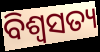
ବିଶ୍ୱସତ୍ୟ